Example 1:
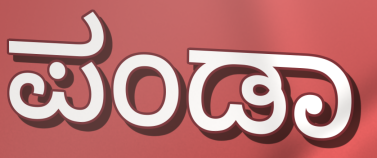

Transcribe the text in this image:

ಪಂಡಾ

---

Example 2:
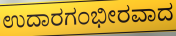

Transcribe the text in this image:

ಉದಾರಗಂಭೀರವಾದ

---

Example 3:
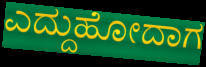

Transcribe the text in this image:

ಎದ್ದುಹೋದಾಗ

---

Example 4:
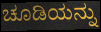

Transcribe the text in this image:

ಚೂಡಿಯನ್ನು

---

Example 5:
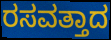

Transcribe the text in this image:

ರಸವತ್ತಾದ